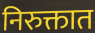
निरुक्तात